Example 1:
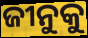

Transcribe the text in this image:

ଜୀନୁକୁ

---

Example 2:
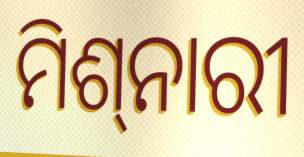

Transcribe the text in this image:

ମିଶ୍‍ନାରୀ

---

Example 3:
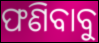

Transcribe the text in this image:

ଫଣିବାବୁ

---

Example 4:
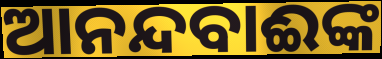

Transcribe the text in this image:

ଆନନ୍ଦବାଈଙ୍କ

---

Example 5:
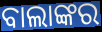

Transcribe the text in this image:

ବାଲାଙ୍କର